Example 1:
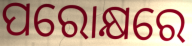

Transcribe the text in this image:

ପରୋକ୍ଷରେ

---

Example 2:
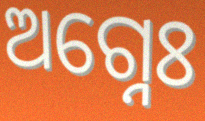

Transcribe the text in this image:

ଅଗ୍ନେଃ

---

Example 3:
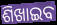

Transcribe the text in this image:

ଶିଖାଇବ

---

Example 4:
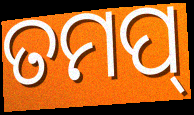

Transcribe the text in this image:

ତମପ୍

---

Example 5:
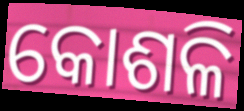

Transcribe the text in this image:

କୋଶଳି